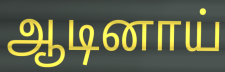
ஆடினாய்